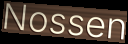
Nossen